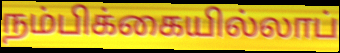
நம்பிக்கையில்லாப்